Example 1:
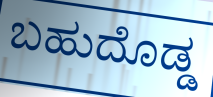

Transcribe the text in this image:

ಬಹುದೊಡ್ಡ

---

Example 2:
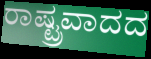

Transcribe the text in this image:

ರಾಷ್ಟ್ರವಾದದ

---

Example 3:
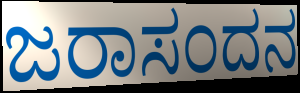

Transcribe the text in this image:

ಜರಾಸಂದನ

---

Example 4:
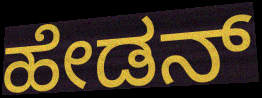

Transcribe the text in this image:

ಹೇಡನ್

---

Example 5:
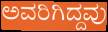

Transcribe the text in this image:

ಅವರಿಗಿದ್ದವು